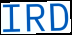
IRD